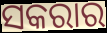
ସକରାର